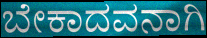
ಬೇಕಾದವನಾಗಿ